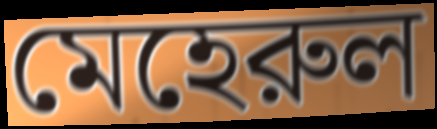
মেহেরুল